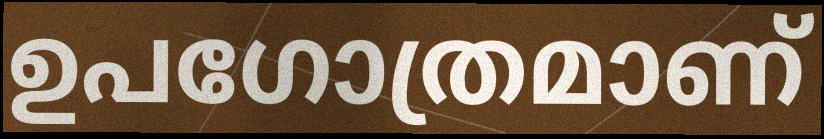
ഉപഗോത്രമാണ്